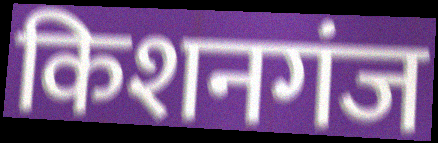
किशनगंज